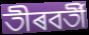
তীৰবৰ্তী